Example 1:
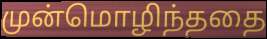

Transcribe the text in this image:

முன்மொழிந்ததை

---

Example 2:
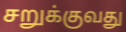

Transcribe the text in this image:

சறுக்குவது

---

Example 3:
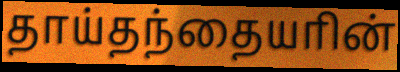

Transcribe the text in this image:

தாய்தந்தையரின்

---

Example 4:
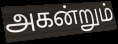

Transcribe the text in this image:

அகன்றும்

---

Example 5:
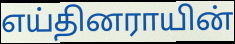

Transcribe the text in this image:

எய்தினராயின்